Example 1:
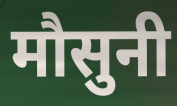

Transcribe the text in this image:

मौसुनी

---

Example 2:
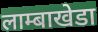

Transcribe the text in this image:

लाम्बाखेडा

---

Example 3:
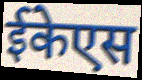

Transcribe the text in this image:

ईकेएस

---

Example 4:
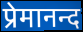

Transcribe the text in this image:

प्रेमानन्द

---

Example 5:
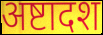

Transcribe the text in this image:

अष्टादश